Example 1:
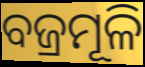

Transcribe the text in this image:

ବଜ୍ରମୂଳି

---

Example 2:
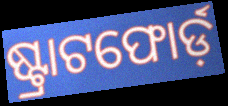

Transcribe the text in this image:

ଷ୍ଟ୍ରାଟଫୋର୍ଡ଼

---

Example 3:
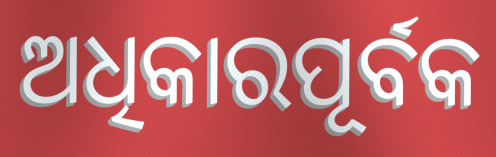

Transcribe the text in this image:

ଅଧିକାରପୂର୍ବକ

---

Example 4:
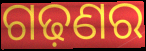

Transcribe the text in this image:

ଗଢ଼ଣର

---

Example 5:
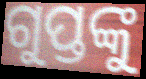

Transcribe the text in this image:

ଗୁପ୍ତଙ୍କୁ